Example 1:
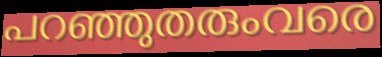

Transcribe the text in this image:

പറഞ്ഞുതരുംവരെ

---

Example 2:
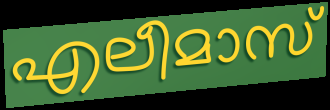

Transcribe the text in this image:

എലീമാസ്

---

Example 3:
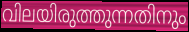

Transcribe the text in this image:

വിലയിരുത്തുന്നതിനും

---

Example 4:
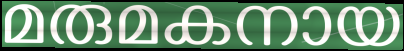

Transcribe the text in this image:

മരുമകനായ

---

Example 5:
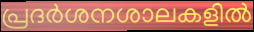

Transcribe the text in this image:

പ്രദർശനശാലകളിൽ